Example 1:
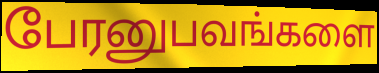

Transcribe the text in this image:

பேரனுபவங்களை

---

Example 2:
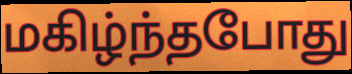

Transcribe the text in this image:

மகிழ்ந்தபோது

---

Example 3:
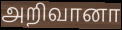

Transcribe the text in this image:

அறிவானா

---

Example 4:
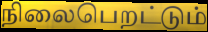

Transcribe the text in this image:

நிலைபெறட்டும்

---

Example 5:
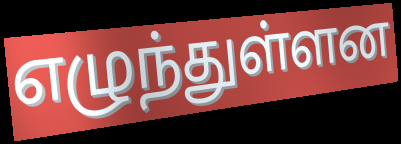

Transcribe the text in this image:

எழுந்துள்ளன